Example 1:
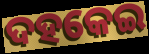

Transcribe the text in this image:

ଦହକେଇ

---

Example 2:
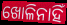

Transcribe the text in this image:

ଖୋଳିନାହିଁ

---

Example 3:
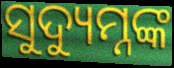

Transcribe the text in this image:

ସୁଦ୍ୟୁମ୍ନଙ୍କ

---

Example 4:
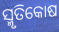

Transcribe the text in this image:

ସ୍ମୃତିକୋଷ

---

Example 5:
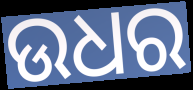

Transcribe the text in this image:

ଉଧର